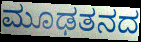
ಮೂಢತನದ